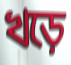
খড়ে